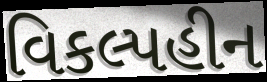
વિકલ્પહીન